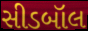
સીડબૉલ